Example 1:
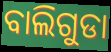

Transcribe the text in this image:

ବାଲିଗୁଡା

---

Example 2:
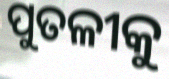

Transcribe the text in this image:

ପୁତଳୀକୁ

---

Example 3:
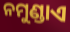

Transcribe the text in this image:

ନମୁଣ୍ଡାଏ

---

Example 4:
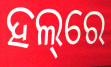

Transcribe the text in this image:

ହଲ୍‌ରେ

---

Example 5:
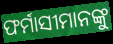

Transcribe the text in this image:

ଫର୍ମାସୀମାନଙ୍କୁ